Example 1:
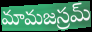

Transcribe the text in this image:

మామజస్రమ్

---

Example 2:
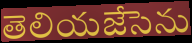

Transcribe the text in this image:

తెలియజేసెను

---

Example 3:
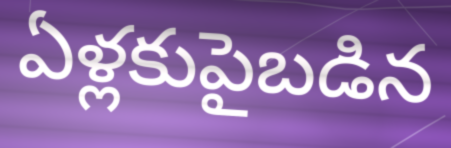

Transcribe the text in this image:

ఏళ్లకుపైబడిన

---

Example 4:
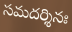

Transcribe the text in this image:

సమదర్శినః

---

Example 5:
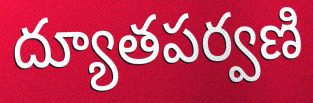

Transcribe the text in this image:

ద్యూతపర్వణి